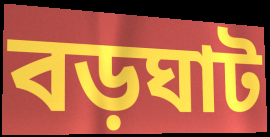
বড়ঘাট